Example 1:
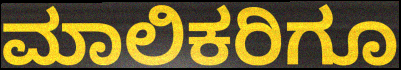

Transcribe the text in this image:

ಮಾಲಿಕರಿಗೂ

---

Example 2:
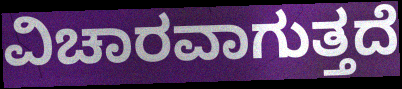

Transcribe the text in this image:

ವಿಚಾರವಾಗುತ್ತದೆ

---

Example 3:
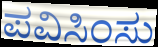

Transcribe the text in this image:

ಪವಿಸಿಂಸು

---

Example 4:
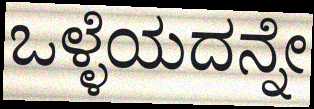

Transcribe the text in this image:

ಒಳ್ಳೆಯದನ್ನೇ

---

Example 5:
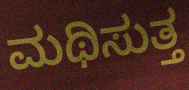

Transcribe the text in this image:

ಮಥಿಸುತ್ತ